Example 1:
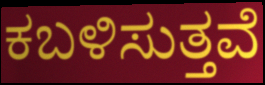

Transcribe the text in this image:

ಕಬಳಿಸುತ್ತವೆ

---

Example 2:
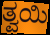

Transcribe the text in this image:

ತ್ವಯಿ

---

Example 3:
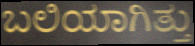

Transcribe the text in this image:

ಬಲಿಯಾಗಿತ್ತು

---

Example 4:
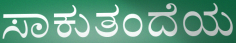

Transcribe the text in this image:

ಸಾಕುತಂದೆಯ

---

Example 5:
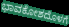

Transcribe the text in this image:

ಭಾವಕೋಶದೊಳಗೆ